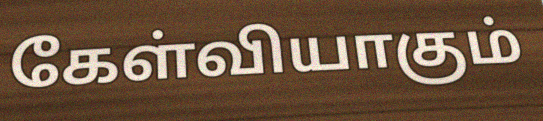
கேள்வியாகும்